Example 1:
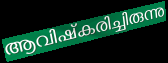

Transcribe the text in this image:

ആവിഷ്‌കരിച്ചിരുന്നു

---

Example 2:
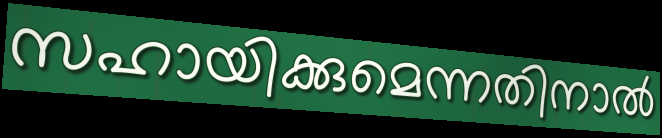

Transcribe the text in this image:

സഹായിക്കുമെന്നതിനാൽ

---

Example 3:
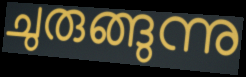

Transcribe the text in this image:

ചുരുങ്ങുന്നു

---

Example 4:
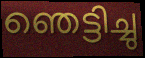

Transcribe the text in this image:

ഞെട്ടിച്ചു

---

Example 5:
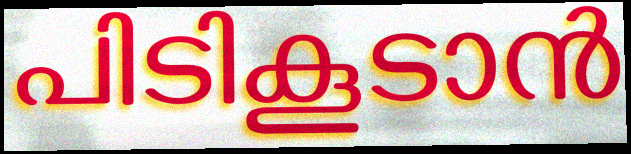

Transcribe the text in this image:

പിടികൂടാൻ